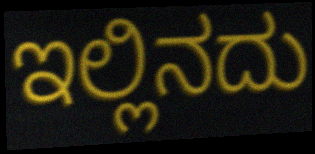
ಇಲ್ಲಿನದು